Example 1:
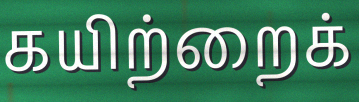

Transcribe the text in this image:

கயிற்றைக்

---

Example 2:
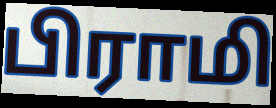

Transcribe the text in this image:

பிராமி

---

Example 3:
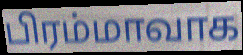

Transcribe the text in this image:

பிரம்மாவாக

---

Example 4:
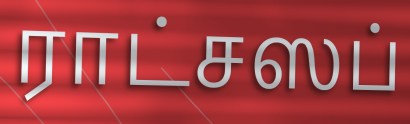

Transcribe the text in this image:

ராட்சஸப்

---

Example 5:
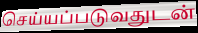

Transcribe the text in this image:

செய்யப்படுவதுடன்